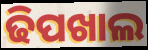
ଢିପଖାଲ